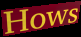
Hows